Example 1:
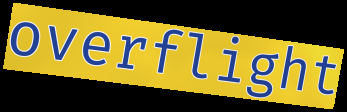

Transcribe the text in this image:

overflight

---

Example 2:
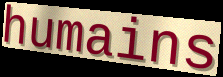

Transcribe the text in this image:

humains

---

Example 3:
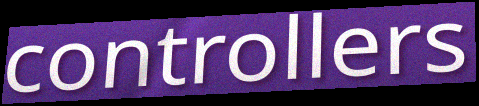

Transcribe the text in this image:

controllers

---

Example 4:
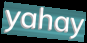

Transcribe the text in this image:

yahay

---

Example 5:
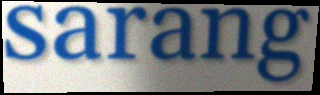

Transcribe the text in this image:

sarang